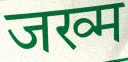
जख्म